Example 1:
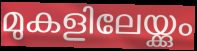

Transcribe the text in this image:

മുകളിലേയ്ക്കും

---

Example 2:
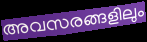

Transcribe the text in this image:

അവസരങ്ങളിലും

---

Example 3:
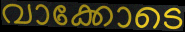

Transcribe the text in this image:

വാക്കോടെ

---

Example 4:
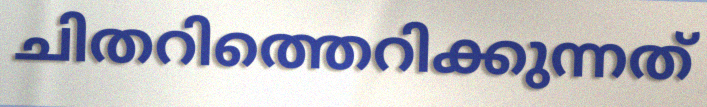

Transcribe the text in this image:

ചിതറിത്തെറിക്കുന്നത്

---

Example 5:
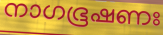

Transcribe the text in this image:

നാഗഭൂഷണഃ